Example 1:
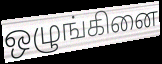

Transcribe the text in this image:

ஒழுங்கினை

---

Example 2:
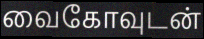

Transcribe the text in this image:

வைகோவுடன்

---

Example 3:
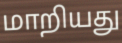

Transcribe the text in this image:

மாறியது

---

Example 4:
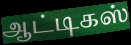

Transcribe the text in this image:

ஆட்டிகஸ்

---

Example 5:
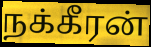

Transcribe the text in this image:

நக்கீரன்